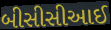
બીસીસીઆઈ